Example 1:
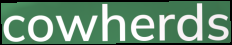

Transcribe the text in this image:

cowherds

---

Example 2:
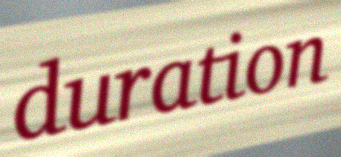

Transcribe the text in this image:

duration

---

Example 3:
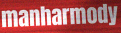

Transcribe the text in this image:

manharmody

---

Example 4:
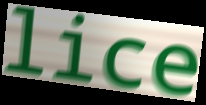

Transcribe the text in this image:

lice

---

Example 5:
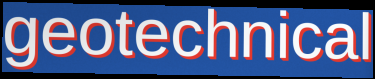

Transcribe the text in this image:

geotechnical